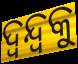
ଦ୍ଵନ୍ଦ୍ଵକୁ